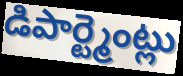
డిపార్ట్మెంట్లు